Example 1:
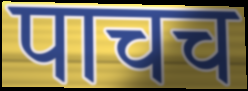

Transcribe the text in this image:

पाचच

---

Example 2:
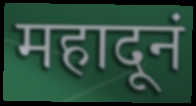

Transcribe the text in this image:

महादूनं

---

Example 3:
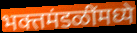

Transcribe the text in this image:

भक्तमंडळींमध्ये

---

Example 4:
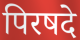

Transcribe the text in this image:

पिरषदे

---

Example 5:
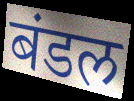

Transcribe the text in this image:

बंडल